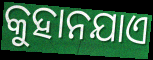
କୁହାନଯାଏ